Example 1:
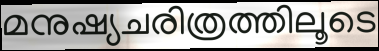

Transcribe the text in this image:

മനുഷ്യചരിത്രത്തിലൂടെ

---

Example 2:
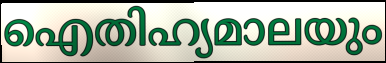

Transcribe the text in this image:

ഐതിഹ്യമാലയും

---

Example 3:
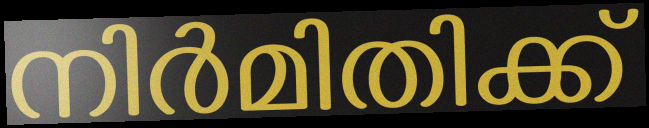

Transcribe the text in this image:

നിർമിതിക്ക്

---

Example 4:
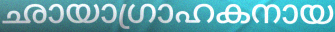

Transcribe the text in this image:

ഛായാഗ്രാഹകനായ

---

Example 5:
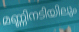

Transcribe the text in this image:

മണ്ണിനടിയിലും